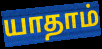
யாதாம்